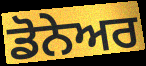
ਡੋਨੇਅਰ